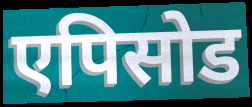
एपिसोड